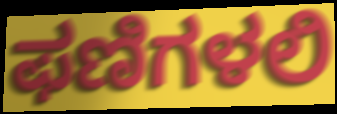
ಫಣಿಗಳಲಿ